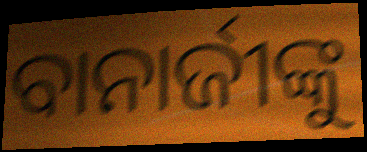
ବାନାର୍ଜୀଙ୍କୁ